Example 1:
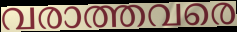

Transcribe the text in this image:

വരാത്തവരെ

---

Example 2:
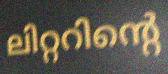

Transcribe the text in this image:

ലിറ്ററിന്റെ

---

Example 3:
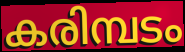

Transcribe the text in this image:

കരിമ്പടം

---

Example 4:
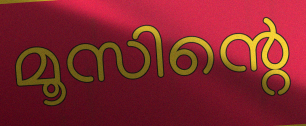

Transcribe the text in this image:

മൂസിന്റെ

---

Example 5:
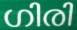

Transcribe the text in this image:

ഗിരി